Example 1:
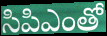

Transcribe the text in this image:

సిపిఎంతో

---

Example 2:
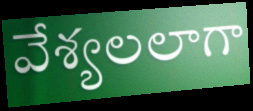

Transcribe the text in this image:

వేశ్యలలాగా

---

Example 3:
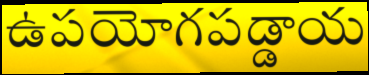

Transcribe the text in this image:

ఉపయోగపడ్డాయ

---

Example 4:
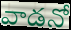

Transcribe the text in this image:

వాడనో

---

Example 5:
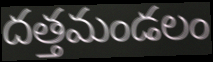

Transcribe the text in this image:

దత్తమండలం